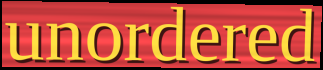
unordered